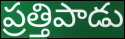
ప్రత్తిపాడు